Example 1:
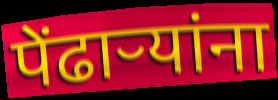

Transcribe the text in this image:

पेंढाऱ्यांना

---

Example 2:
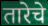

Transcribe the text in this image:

तारेचे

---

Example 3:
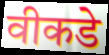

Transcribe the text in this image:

वीकडे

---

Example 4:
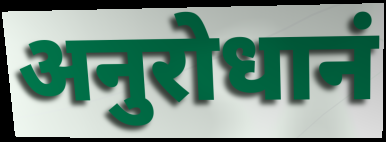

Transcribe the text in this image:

अनुरोधानं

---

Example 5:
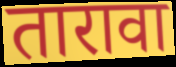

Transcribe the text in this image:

तारावा